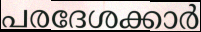
പരദേശക്കാർ